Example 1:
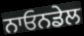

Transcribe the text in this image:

ਨਾਓਨਡੇਲ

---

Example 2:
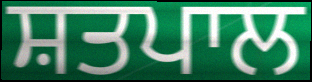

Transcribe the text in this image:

ਸ਼ਤਪਾਲ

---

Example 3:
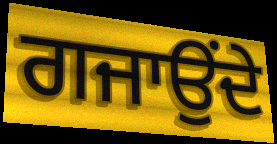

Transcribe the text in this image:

ਗਜਾਉਂਦੇ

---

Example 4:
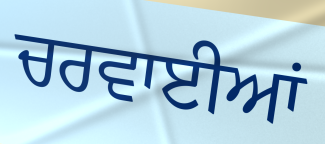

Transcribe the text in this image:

ਚਰਵਾਈਆਂ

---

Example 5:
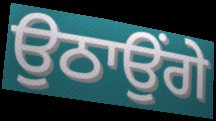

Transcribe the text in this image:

ਉਠਾਉਂਗੇ